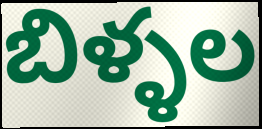
బిళ్ళల